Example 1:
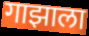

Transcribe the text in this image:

गाझाला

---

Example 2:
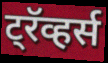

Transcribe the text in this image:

ट्रॅव्हर्स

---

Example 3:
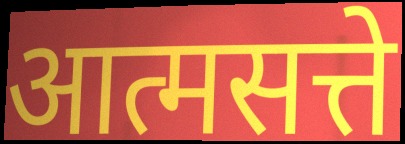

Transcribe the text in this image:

आत्मसत्ते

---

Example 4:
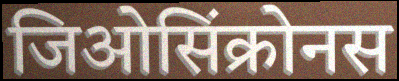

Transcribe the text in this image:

जिओसिंक्रोनस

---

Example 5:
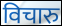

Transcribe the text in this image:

विचारु